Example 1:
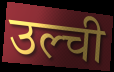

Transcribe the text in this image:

उल्ची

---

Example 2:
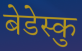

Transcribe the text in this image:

बेडेस्कु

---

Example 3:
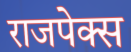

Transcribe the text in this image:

राजपेक्स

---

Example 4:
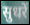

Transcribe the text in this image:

सुधरें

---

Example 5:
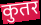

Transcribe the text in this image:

कुतर